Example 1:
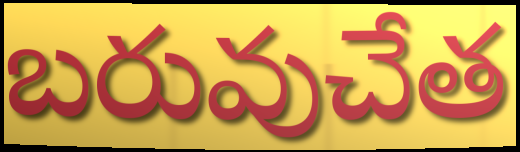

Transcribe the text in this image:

బరువుచేత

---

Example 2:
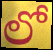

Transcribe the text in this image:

లో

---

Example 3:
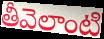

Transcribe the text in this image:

తీవెలాంటి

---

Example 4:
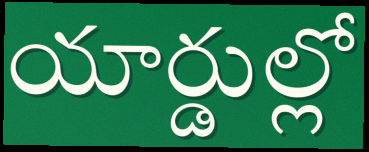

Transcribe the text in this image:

యార్డుల్లో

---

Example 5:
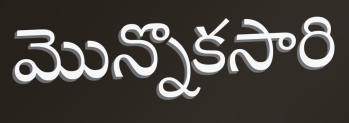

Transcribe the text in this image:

మొన్నొకసారి